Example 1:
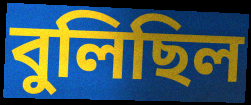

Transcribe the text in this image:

বুলিছিল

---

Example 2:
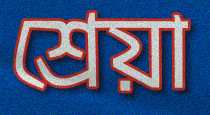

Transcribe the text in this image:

শ্ৰেয়া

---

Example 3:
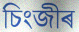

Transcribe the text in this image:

চিংজীৰ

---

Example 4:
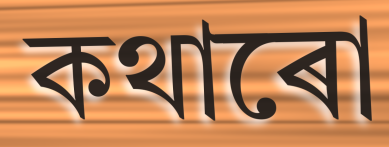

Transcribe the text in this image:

কথাৰো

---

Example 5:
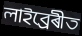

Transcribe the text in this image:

লাইব্ৰেৰীত